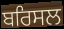
ਬਰਿਸਲ